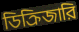
ডিক্রিজারি